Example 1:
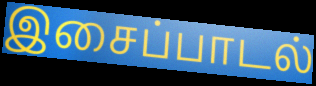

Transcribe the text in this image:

இசைப்பாடல்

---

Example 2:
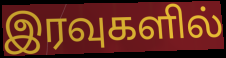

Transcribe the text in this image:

இரவுகளில்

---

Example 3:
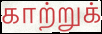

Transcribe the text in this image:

காற்றுக்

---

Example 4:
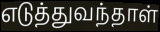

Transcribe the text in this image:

எடுத்துவந்தாள்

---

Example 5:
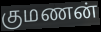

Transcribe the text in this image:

குமணன்